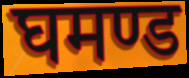
घमण्ड